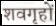
शवगृहों